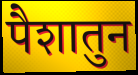
पैशातुन